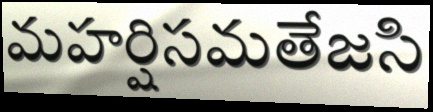
మహర్షిసమతేజసి